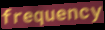
frequency